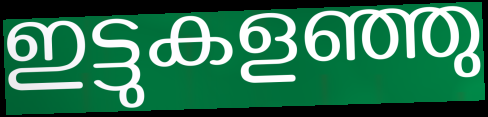
ഇട്ടുകളഞ്ഞു